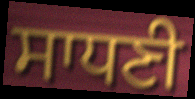
ਸਾਧਣੀ